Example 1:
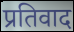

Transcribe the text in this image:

प्रतिवाद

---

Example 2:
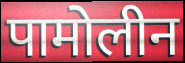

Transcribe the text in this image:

पामोलीन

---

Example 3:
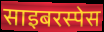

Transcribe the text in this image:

साइबरस्पेस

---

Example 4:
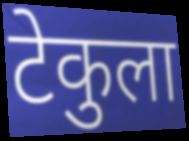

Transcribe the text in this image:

टेकुला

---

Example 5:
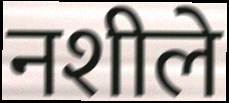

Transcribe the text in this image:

नशीले